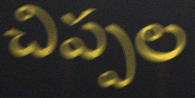
చిప్పల